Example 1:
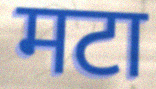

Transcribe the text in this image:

मटा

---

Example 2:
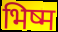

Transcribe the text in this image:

भिष्म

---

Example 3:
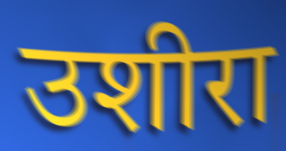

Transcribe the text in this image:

उशीरा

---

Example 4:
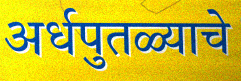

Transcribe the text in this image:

अर्धपुतळ्याचे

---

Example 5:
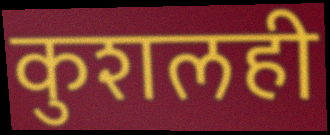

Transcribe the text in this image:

कुशलही